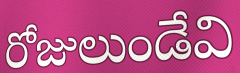
రోజులుండేవి